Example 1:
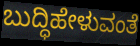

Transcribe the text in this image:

ಬುದ್ಧಿಹೇಳುವಂತೆ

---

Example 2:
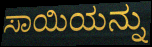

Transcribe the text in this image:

ಸಾಯಿಯನ್ನು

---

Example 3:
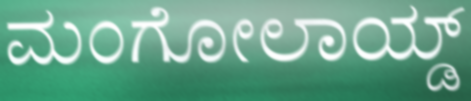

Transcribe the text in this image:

ಮಂಗೋಲಾಯ್ಡ್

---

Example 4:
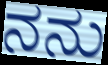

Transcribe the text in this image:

ನನು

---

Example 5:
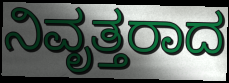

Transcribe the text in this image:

ನಿವೃತ್ತರಾದ